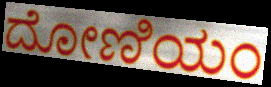
ದೋಣಿಯಂ